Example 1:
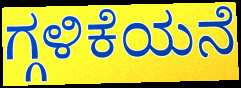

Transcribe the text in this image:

ಗ್ಗಳಿಕೆಯನೆ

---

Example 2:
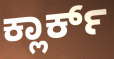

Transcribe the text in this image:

ಕ್ಲಾರ್ಕ್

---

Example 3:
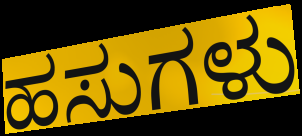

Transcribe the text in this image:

ಹಸುಗಳು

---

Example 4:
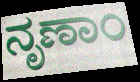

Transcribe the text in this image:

ನೃಣಾಂ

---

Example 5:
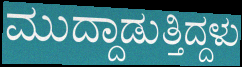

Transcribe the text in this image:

ಮುದ್ದಾಡುತ್ತಿದ್ದಳು